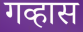
गव्हास